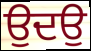
ਉਦਉ